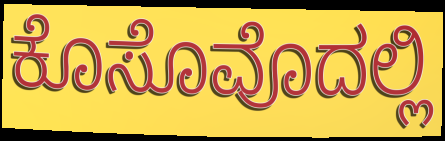
ಕೊಸೊವೊದಲ್ಲಿ